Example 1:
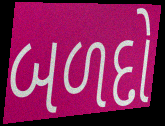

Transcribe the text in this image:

બળદો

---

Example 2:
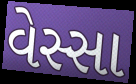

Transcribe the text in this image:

વેસ્સા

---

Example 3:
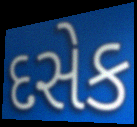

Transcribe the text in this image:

દસેક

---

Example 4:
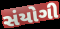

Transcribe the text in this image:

સંયોગી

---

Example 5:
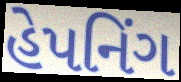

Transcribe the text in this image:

હેપનિંગ